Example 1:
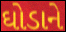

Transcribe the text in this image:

ઘોડાને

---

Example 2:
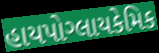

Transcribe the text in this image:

હાયપોગ્લાયકેમિક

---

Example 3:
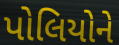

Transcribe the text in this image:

પોલિયોને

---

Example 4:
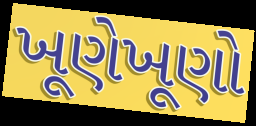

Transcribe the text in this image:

ખૂણેખૂણો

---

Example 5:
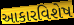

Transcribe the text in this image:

આકારવિશેષ